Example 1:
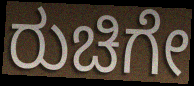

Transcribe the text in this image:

ರುಚಿಗೇ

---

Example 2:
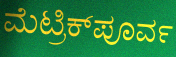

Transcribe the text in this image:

ಮೆಟ್ರಿಕ್‌ಪೂರ್ವ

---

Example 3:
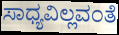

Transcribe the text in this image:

ಸಾಧ್ಯವಿಲ್ಲವಂತೆ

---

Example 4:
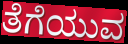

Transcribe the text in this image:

ತೆಗೆಯುವ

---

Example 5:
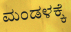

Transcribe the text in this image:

ಮಂಡಳಕ್ಕೆ